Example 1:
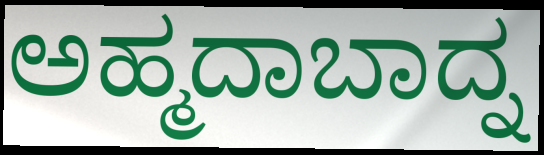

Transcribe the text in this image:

ಅಹ್ಮದಾಬಾದ್ನ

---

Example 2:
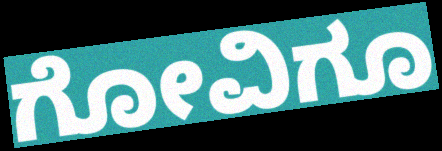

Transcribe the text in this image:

ಗೋವಿಗೂ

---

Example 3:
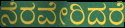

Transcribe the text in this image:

ನೆರವೇರಿದರೆ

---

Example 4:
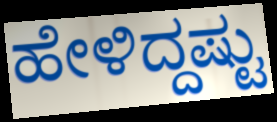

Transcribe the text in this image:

ಹೇಳಿದ್ದಷ್ಟು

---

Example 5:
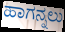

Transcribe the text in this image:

ಹಾಗನ್ನಲು